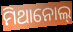
ମିଥାନୋଲ୍